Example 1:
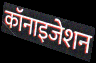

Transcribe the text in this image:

कॉनाइजेशन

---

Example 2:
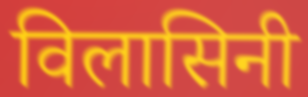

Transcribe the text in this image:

विलासिनी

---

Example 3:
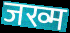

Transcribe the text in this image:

जख्म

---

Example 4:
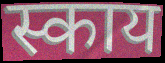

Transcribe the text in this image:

स्काय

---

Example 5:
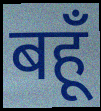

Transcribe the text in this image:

बहूँ